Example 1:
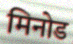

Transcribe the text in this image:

मिनोड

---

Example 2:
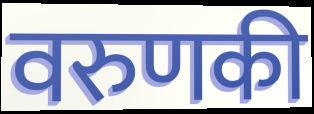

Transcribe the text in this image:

वरुणकी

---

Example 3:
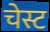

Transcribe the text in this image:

चेस्ट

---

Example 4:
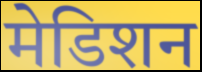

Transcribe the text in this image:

मेडिशन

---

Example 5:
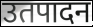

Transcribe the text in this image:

उतपादन